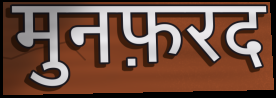
मुनफ़रद